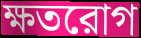
ক্ষতরোগ